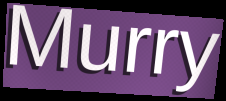
Murry